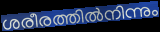
ശരീരത്തിൽനിന്നും